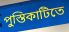
পুস্তিকাটিতে